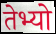
तेभ्यो